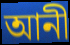
আনী